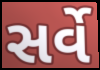
સર્વે